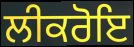
ਲੀਕਰੋਇ